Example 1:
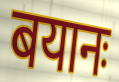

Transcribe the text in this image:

बयानः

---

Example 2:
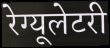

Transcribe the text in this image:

रेग्यूलेटरी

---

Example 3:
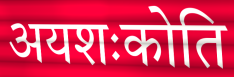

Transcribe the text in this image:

अयशःकोति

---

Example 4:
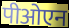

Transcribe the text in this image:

पीओएन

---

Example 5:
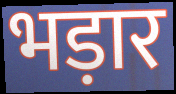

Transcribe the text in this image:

भड़ार